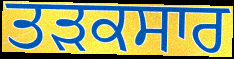
ਤੜਕਸਾਰ